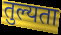
तुल्यता